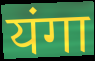
यंगा